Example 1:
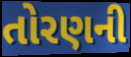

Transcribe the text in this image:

તોરણની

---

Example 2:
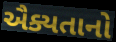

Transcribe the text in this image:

ઐક્યતાનો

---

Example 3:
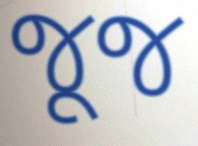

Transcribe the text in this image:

જૂજ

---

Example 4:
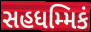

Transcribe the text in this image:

સહધમ્મિકં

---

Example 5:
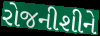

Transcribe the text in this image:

રોજનીશીને